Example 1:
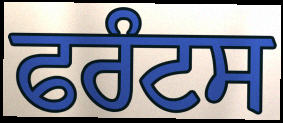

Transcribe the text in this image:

ਫਰੰਟਸ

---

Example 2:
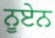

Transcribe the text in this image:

ਨੂਏਨ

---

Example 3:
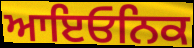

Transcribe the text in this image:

ਆਇਓਨਿਕ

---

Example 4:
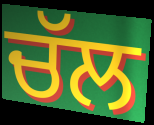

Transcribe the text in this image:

ਚੱਲ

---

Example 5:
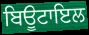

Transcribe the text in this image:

ਬਿਊਟਾਇਲ